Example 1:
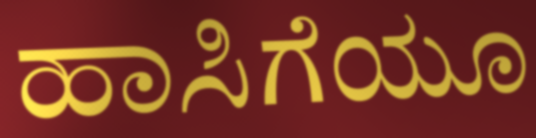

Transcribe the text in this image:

ಹಾಸಿಗೆಯೂ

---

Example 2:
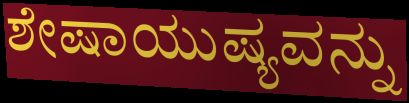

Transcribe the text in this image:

ಶೇಷಾಯುಷ್ಯವನ್ನು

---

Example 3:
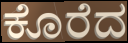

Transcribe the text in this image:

ಕೊರೆದ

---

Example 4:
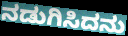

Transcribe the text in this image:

ನಡುಗಿಸಿದನು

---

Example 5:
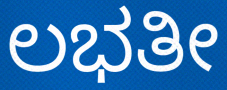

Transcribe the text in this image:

ಲಭತೀ